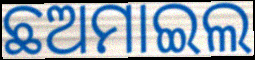
ଛଅମାଇଲ